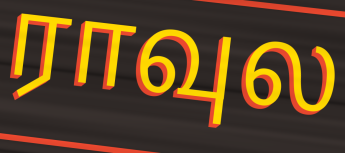
ராவுல